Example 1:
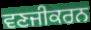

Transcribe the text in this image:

ਵਣਜੀਕਰਨ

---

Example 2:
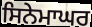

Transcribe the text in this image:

ਸਿਨੇਮਾਘਰ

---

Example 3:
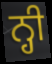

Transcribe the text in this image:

ਨ੍ਹੀ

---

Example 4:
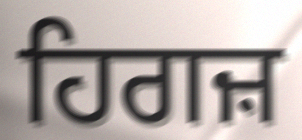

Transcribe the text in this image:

ਹਿਗਜ਼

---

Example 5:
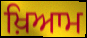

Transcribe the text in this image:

ਖ਼ਿਆਮ